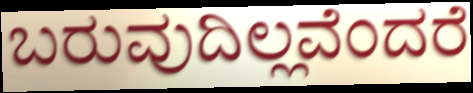
ಬರುವುದಿಲ್ಲವೆಂದರೆ